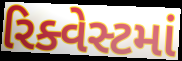
રિક્વેસ્ટમાં